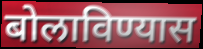
बोलाविण्यास